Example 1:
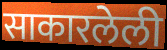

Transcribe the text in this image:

साकारलेली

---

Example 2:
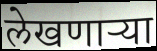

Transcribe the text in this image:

लेखणाऱ्या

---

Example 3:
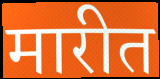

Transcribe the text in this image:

मारीत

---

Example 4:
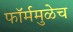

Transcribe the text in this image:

फॉर्ममुळेच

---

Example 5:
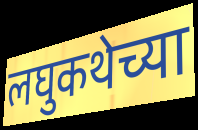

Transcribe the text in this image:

लघुकथेच्या